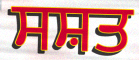
ਸਸ਼ਤ